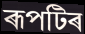
ৰূপটিৰ